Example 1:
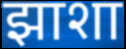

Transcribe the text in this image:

झाशा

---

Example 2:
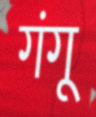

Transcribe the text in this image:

गंगू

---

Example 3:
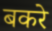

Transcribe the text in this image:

बकरे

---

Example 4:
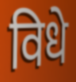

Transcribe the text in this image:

विधे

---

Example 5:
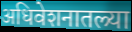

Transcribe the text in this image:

अधिवेशनातल्या